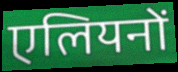
एलियनों